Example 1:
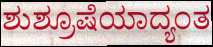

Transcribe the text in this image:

ಶುಶ್ರೂಷೆಯಾದ್ಯಂತ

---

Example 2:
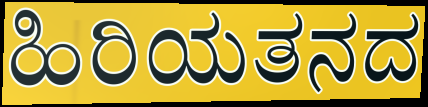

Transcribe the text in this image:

ಹಿರಿಯತನದ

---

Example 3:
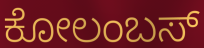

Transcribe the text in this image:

ಕೋಲಂಬಸ್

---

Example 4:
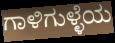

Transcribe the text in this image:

ಗಾಳಿಗುಳ್ಳೆಯ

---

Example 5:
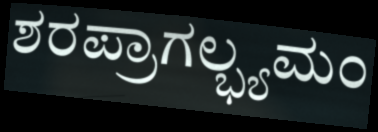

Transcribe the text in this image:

ಶರಪ್ರಾಗಲ್ಭ್ಯಮಂ